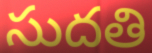
సుదతి